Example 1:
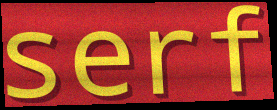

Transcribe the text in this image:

serf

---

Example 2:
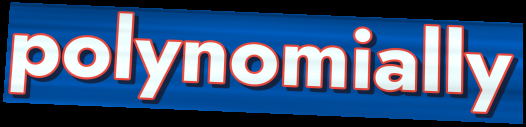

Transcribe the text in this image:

polynomially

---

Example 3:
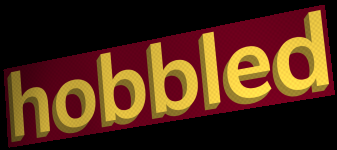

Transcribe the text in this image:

hobbled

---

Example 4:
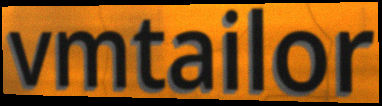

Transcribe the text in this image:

vmtailor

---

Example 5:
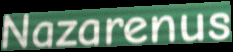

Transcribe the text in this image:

Nazarenus